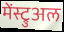
मेंस्ट्रुअल